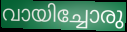
വായിച്ചോരു